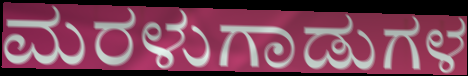
ಮರಳುಗಾಡುಗಳ